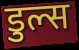
डुल्स